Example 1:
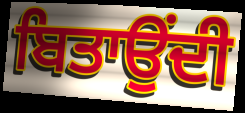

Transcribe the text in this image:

ਬਿਤਾਉਂਦੀ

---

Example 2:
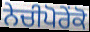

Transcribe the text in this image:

ਨੇਚੀਪੋਰੇਂਕੋ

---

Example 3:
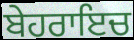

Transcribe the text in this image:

ਬੇਹਰਾਇਚ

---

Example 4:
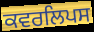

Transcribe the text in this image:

ਕਵਰਲਿਪਸ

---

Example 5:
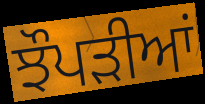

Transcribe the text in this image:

ਝੌਪੜੀਆਂ